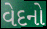
વેદનો